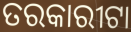
ତରକାରୀଟା